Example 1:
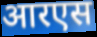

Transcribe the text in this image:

आरएस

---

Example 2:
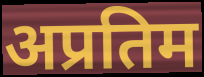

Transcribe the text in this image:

अप्रतिम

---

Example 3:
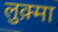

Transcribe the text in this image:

लुक़्मा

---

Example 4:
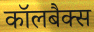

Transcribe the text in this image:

कॉलबैक्स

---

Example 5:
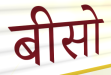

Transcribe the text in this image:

बीसो